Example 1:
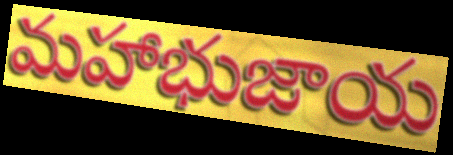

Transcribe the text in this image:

మహాభుజాయ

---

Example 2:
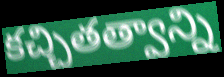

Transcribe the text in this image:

కచ్చితత్వాన్ని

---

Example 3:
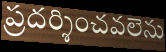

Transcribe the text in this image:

ప్రదర్శించవలెను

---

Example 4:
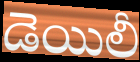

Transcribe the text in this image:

డెయిలీ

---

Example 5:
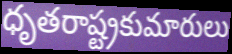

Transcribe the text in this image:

ధృతరాష్ట్రకుమారులు